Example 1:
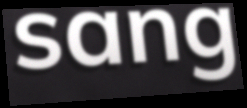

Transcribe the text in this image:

sang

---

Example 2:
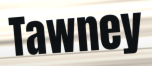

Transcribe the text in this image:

Tawney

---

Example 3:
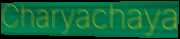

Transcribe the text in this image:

Charyachaya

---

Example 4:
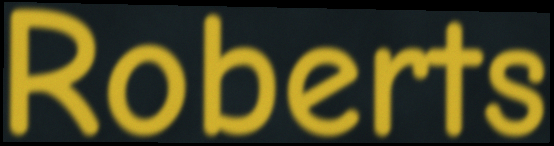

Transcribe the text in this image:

Roberts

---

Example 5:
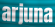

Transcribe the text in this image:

arjuna